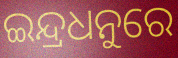
ଇନ୍ଦ୍ରଧନୁରେ